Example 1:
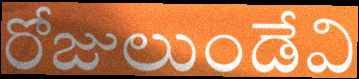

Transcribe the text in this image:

రోజులుండేవి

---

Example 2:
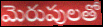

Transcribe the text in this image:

మెరుపులతో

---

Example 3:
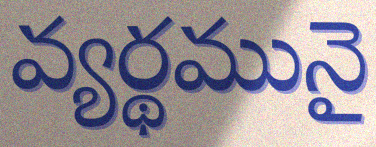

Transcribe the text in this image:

వ్యర్థమునై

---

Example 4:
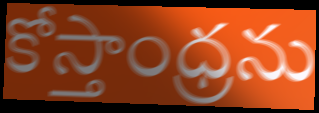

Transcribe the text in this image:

కోస్తాంధ్రను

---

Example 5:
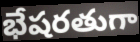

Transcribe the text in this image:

భేషరతుగా